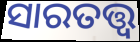
ସାରତତ୍ତ୍ଵ